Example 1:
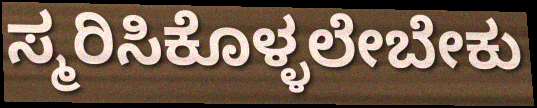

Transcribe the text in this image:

ಸ್ಮರಿಸಿಕೊಳ್ಳಲೇಬೇಕು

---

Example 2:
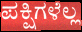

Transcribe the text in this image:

ಪಕ್ಷಿಗಳೆಲ್ಲ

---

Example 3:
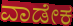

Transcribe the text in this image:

ವಾಡೇಕ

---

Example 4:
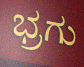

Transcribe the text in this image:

ಭ್ರಗು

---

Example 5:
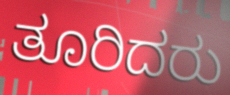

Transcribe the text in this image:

ತೂರಿದರು